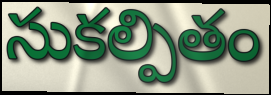
సుకల్పితం